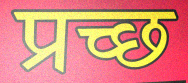
प्रच्छ